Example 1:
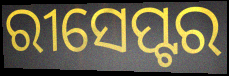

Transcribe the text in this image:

ରୀସେପ୍ଟର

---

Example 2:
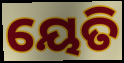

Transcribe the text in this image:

ୟେତି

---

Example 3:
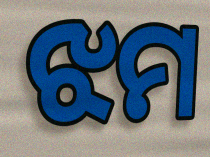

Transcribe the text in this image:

ଝମ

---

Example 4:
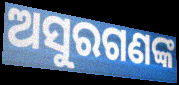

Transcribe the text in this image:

ଅସୁରଗଣଙ୍କ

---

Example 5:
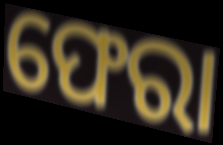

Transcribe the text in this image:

ଫେରା